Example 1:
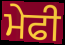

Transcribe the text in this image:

ਮੇਫੀ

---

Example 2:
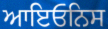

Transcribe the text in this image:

ਆਇਓਨਿਸ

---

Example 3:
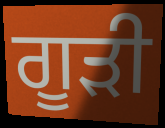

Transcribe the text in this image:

ਗੂੜੀ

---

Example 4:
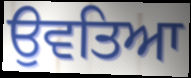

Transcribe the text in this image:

ਉਵਤਿਆ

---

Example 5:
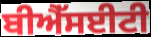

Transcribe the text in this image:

ਬੀਐੱਸਈਟੀ